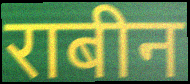
राबीन